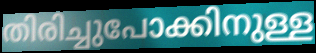
തിരിച്ചുപോക്കിനുള്ള